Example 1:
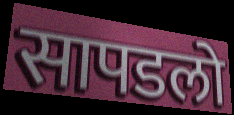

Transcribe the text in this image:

सापडलो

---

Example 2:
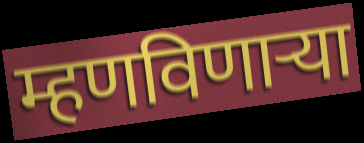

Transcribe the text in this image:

म्हणविणाऱ्या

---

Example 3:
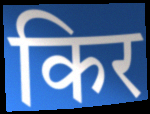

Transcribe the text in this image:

किर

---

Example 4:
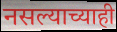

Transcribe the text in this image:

नसल्याच्याही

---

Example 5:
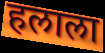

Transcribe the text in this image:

हलाला